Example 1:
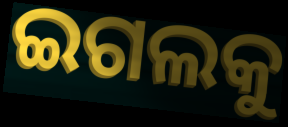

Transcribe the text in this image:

ଇଗଲକୁ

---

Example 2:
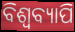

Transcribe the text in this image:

ବିଶ୍ବବ୍ୟାପି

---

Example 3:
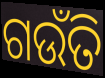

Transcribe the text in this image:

ଗଉଁତି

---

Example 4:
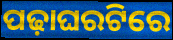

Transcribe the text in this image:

ପଢ଼ାଘରଟିରେ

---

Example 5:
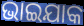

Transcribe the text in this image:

ଭାଇଯାକ